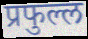
प्रफुल्ल